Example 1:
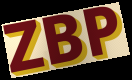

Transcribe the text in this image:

ZBP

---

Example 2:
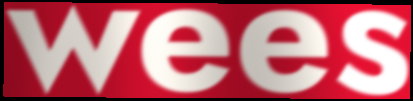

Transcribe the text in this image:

wees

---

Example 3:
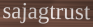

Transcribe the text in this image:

sajagtrust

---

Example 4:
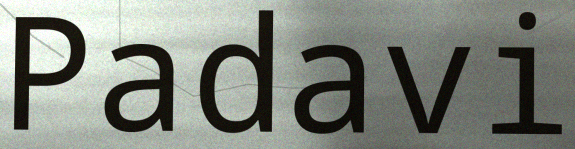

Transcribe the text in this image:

Padavi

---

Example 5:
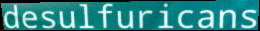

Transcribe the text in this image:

desulfuricans